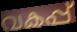
വകപ്പ്